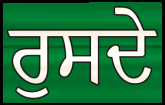
ਰੁਸਦੇ